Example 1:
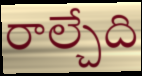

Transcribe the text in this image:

రాల్చేది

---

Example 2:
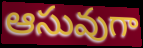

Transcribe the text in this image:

ఆసువుగా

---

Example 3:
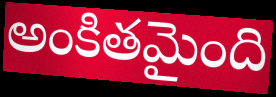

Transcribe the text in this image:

అంకితమైంది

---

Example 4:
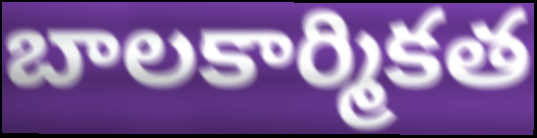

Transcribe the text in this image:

బాలకార్మికత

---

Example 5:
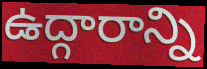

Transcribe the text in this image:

ఉద్గారాన్ని